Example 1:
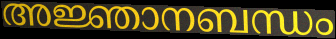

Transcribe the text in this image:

അജ്ഞാനബന്ധം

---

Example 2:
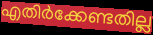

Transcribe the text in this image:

എതിർക്കേണ്ടതില്ല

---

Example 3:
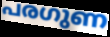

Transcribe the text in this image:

പരഗുണ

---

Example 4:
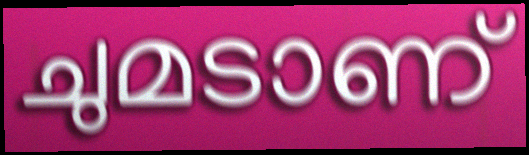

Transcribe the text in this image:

ചുമടാണ്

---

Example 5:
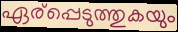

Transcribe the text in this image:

ഏര്പ്പെടുത്തുകയും